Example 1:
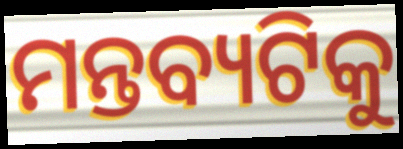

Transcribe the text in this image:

ମନ୍ତବ୍ୟଟିକୁ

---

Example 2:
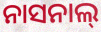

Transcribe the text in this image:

ନାସନାଲ୍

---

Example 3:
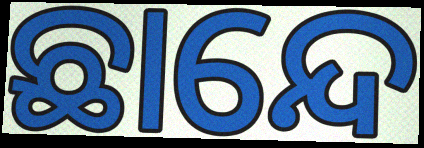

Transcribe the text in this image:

ଛାନ୍ଦେ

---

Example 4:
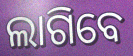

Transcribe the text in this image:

ଲାଗିବେ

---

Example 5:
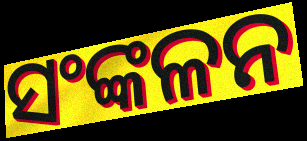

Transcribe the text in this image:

ସଂଙ୍କଳନ